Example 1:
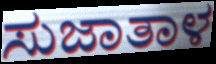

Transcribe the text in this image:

ಸುಜಾತಾಳ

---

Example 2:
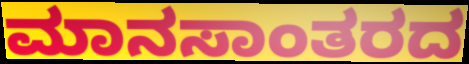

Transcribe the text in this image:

ಮಾನಸಾಂತರದ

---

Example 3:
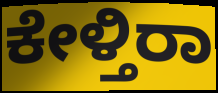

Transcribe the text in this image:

ಕೇಳ್ತಿರಾ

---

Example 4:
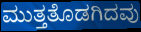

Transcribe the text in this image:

ಮುತ್ತತೊಡಗಿದವು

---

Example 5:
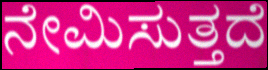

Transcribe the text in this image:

ನೇಮಿಸುತ್ತದೆ